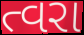
ત્વરા